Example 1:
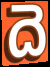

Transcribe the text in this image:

దె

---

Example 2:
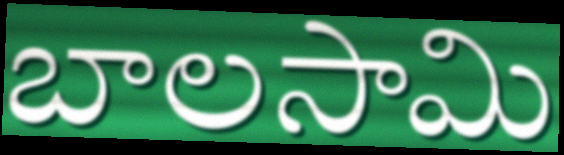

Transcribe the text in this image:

బాలసామి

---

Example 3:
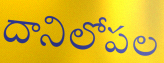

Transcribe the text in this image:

దానిలోపల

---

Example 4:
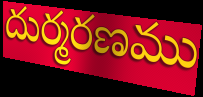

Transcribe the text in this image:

దుర్మరణము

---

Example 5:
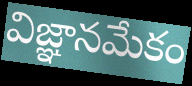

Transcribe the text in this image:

విజ్ఞానమేకం